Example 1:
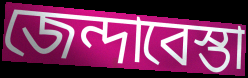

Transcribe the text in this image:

জেন্দাবেস্তা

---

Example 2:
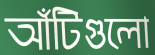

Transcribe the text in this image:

আঁটিগুলো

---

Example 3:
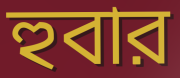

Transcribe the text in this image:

হুবার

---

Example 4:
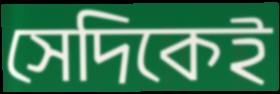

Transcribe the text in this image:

সেদিকেই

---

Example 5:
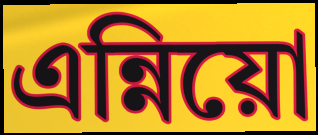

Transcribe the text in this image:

এন্নিয়ো